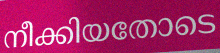
നീക്കിയതോടെ